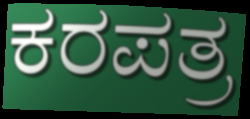
ಕರಪತ್ರ